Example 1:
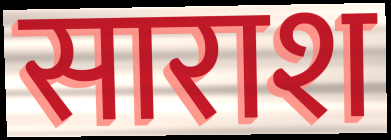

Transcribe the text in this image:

साराश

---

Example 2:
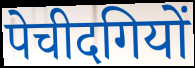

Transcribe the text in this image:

पेचीदगियों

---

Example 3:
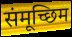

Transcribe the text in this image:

संमूच्छिम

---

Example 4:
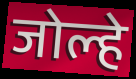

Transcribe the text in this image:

जोल्हे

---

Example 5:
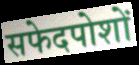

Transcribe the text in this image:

सफेदपोशों